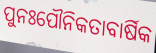
ପୁନଃପୌନିକତାବାର୍ଷିକ